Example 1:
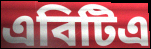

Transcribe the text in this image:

এবিটিএ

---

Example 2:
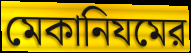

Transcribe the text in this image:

মেকানিযমের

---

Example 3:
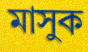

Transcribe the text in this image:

মাসুক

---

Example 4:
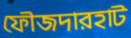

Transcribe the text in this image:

ফৌজদারহাট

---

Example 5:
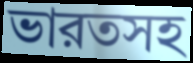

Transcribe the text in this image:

ভারতসহ